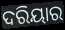
ଦରିୟାର